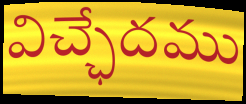
విచ్ఛేదము